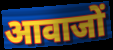
आवाजों